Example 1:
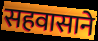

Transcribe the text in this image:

सहवासाने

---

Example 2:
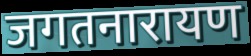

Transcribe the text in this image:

जगतनारायण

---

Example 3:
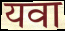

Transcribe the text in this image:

यवा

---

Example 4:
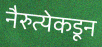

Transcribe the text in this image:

नैरुत्येकडून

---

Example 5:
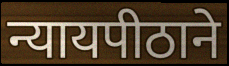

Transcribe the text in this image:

न्यायपीठाने